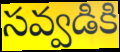
సవ్వడికి